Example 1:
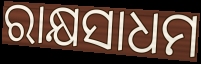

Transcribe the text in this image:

ରାକ୍ଷସାଧମ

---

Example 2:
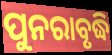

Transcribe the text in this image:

ପୁନରାବୃଦ୍ଧି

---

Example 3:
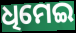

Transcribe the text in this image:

ଧିମେଇ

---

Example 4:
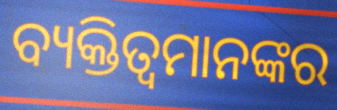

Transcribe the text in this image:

ବ୍ୟକ୍ତିତ୍ୱମାନଙ୍କର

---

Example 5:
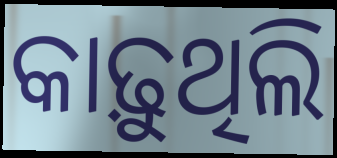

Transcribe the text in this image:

କାଢ଼ୁଥିଲି